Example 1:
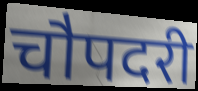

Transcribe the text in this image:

चौपदरी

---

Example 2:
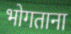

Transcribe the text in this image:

भोगताना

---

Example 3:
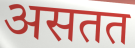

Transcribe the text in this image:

असतत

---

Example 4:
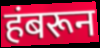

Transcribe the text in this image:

हंबरून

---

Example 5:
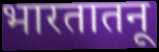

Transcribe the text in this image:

भारतातनू